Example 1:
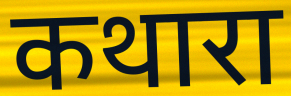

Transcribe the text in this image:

कथारा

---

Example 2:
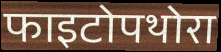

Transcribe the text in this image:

फाइटोपथोरा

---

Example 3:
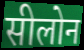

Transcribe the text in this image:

सीलोन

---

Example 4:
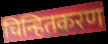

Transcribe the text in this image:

चिन्हितकरण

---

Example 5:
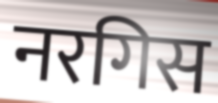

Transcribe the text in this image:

नरगिस